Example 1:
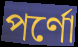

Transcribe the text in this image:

পর্ণো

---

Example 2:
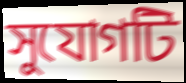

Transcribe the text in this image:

সুযোগটি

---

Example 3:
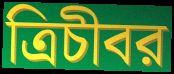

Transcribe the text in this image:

ত্রিচীবর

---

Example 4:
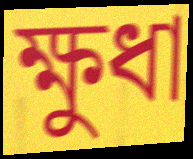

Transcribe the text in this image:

ক্ষুধা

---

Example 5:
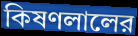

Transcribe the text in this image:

কিষণলালের